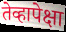
तेव्हापेक्षा